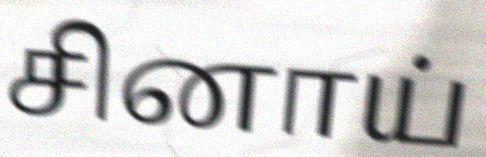
சினாய்